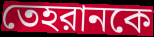
তেহরানকে